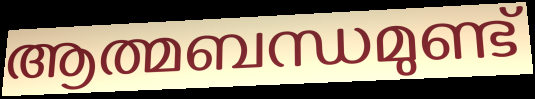
ആത്മബന്ധമുണ്ട്